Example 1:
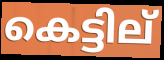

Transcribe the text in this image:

കെട്ടില്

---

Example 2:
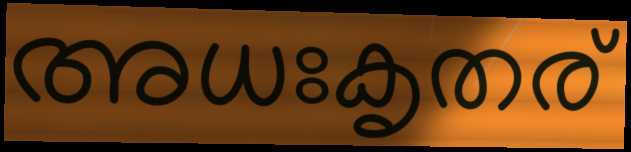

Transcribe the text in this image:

അധഃകൃതര്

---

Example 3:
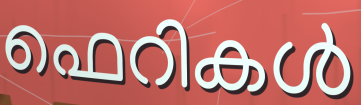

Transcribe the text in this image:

ഫെറികൾ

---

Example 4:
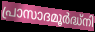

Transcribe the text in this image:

പ്രാസാദമൂർദ്ധ്നി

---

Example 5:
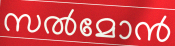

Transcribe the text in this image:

സൽമോൻ